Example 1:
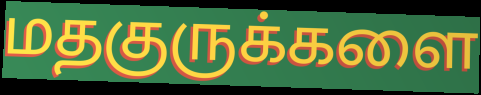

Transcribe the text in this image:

மதகுருக்களை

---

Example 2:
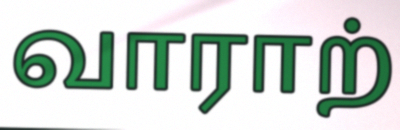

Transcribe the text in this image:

வாராற்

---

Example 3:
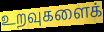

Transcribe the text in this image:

உறவுகளைக்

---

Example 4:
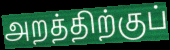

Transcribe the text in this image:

அறத்திற்குப்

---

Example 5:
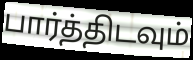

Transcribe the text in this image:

பார்த்திடவும்